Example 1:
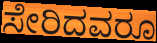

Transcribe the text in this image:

ಸೇರಿದವರೂ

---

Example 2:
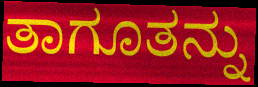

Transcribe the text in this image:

ತಾಗೂತನ್ನು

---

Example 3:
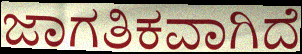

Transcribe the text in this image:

ಜಾಗತಿಕವಾಗಿದೆ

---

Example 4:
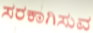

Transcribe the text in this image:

ಸರಕಾಗಿಸುವ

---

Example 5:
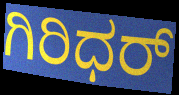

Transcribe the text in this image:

ಗಿರಿಧರ್